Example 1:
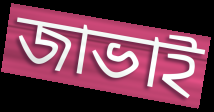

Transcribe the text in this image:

জাভাই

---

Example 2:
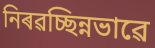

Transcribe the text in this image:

নিৰৱচ্ছিন্নভাৱে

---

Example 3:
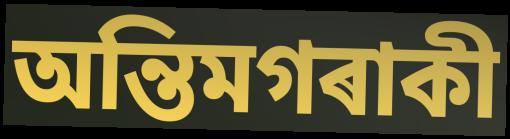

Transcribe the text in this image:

অন্তিমগৰাকী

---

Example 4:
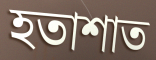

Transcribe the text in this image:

হতাশাত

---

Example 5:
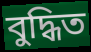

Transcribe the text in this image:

বুদ্ধিত